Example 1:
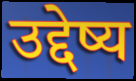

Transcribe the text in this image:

उद्देष्य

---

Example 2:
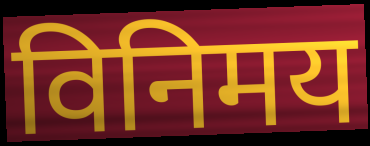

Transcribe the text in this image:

विनिमय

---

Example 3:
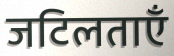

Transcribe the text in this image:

जटिलताएँ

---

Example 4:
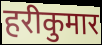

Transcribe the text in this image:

हरीकुमार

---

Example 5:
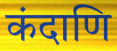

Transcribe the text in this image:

कंदाणि